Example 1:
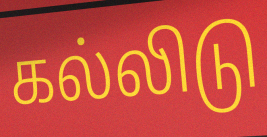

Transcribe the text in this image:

கல்லிடு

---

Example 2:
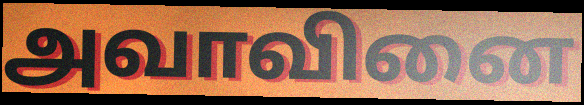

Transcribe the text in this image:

அவாவினை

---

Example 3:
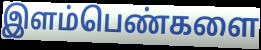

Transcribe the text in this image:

இளம்பெண்களை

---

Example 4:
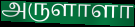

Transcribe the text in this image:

அருளாளா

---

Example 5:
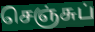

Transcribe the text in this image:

செஞ்சுப்